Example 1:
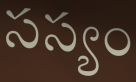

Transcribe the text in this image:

సస్యం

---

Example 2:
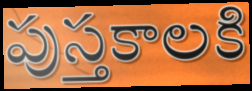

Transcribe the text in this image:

పుస్తకాలకి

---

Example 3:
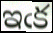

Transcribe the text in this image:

ఇఁక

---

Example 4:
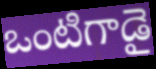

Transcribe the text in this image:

ఒంటిగాడై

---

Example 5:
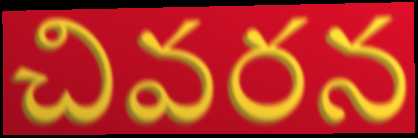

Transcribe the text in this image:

చివరన